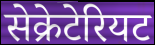
सेक्रेटेरियट